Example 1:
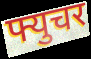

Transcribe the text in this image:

फ्युचर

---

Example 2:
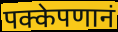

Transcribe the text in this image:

पक्केपणानं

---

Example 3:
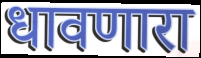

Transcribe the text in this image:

धावणारा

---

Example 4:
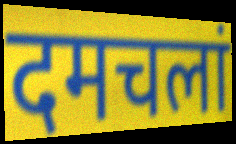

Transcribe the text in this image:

दमचलां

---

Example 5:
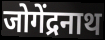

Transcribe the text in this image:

जोगेंद्रनाथ